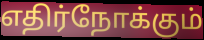
எதிர்நோக்கும்